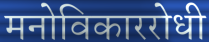
मनोविकाररोधी